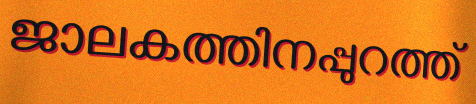
ജാലകത്തിനപ്പുറത്ത്